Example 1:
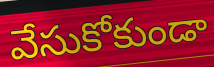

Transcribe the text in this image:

వేసుకోకుండా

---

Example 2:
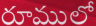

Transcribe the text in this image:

రూములో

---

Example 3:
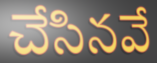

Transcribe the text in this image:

చేసినవే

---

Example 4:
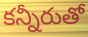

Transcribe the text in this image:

కన్నీరుతో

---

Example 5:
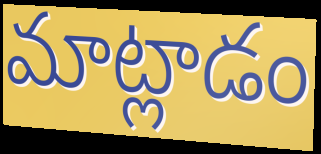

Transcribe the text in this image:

మాట్లాడం